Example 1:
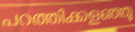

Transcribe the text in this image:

പറത്തിക്കളഞ്ഞു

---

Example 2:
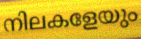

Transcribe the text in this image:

നിലകളേയും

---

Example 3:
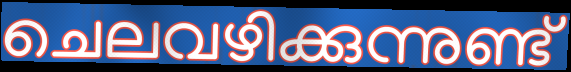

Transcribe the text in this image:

ചെലവഴിക്കുന്നുണ്ട്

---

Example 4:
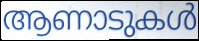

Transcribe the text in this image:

ആണാടുകൾ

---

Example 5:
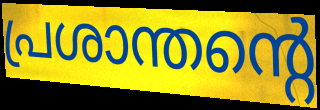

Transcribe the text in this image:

പ്രശാന്തന്റെ